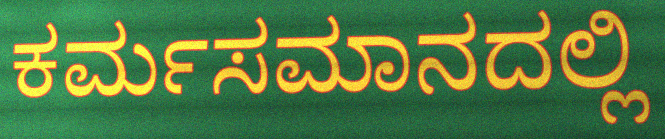
ಕರ್ಮಸಮಾನದಲ್ಲಿ